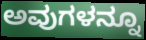
ಅವುಗಳನ್ನೂ